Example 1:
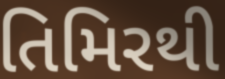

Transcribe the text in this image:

તિમિરથી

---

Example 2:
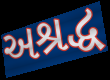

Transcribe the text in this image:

અશ્રદ્ધ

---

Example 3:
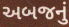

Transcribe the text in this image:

અબજનું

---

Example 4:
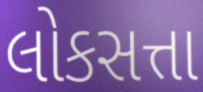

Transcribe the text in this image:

લોકસત્તા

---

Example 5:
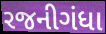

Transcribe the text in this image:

રજનીગંધા